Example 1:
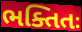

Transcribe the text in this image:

ભક્તિતઃ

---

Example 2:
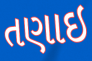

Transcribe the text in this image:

તણાઇ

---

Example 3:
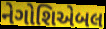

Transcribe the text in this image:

નેગોશિએબલ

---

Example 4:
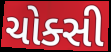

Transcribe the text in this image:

ચોક્સી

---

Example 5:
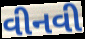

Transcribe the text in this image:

વીનવી